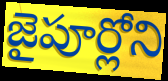
జైపూర్లోని